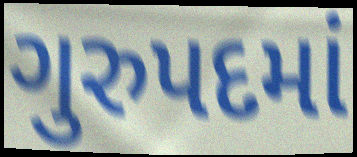
ગુરુપદમાં